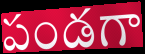
పండగా